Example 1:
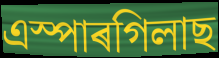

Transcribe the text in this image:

এস্পাৰগিলাছ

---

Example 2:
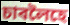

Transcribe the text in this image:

চাবলৈহে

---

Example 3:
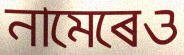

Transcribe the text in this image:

নামেৰেও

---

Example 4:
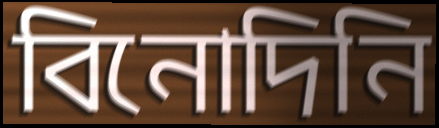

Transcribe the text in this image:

বিনোদিনি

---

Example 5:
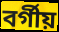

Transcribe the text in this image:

বৰ্গীয়